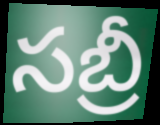
సబ్రీ